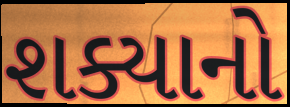
શક્યાનો